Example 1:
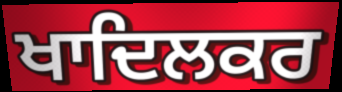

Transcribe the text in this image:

ਖਾਦਿਲਕਰ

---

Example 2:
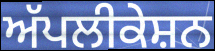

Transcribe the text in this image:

ਅੱਪਲੀਕੇਸ਼ਨ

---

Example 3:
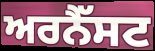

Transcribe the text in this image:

ਅਰਨੈੱਸਟ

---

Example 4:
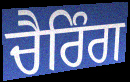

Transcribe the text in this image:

ਚੈਰਿੰਗ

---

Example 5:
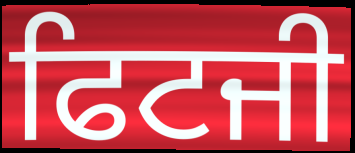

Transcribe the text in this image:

ਫਿਟਜੀ